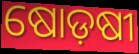
ଷୋଡ଼ଷୀ